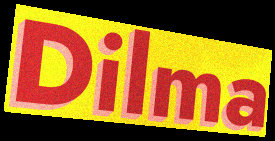
Dilma